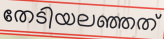
തേടിയലഞ്ഞത്